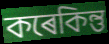
কৰেকিন্তু